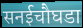
सनईचौघडा